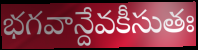
భగవాన్దేవకీసుతః